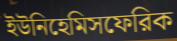
ইউনিহেমিসফেরিক